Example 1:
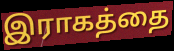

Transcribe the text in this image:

இராகத்தை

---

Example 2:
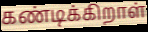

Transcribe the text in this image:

கண்டிக்கிறாள்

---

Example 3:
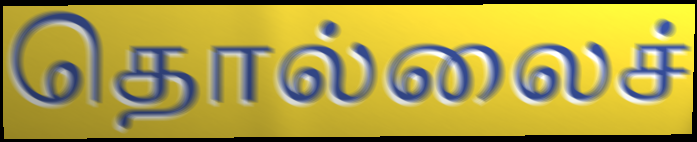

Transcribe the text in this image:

தொல்லைச்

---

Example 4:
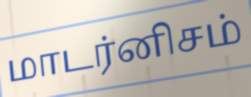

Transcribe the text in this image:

மாடர்னிசம்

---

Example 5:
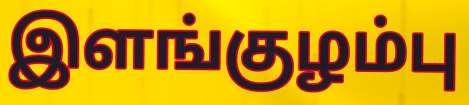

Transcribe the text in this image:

இளங்குழம்பு